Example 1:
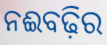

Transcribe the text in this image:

ନଈବଢ଼ିର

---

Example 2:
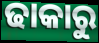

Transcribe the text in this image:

ଢାକାରୁ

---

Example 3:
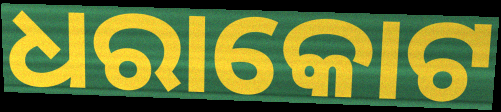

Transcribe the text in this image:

ଧରାକୋଟ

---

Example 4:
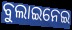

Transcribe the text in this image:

ବୁଲାଇନେଇ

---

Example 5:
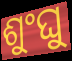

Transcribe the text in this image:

ଶୁଂଘୁ